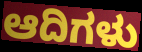
ಆದಿಗಳು